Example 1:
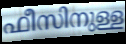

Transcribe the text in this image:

ഫീസിനുള്ള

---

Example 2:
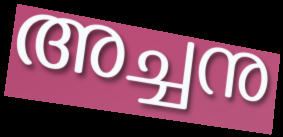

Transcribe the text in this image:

അച്ചനു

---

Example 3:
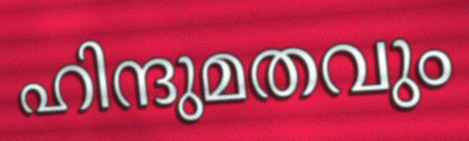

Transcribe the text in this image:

ഹിന്ദുമതവും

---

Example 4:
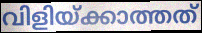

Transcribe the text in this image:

വിളിയ്ക്കാത്തത്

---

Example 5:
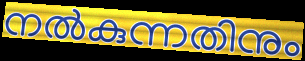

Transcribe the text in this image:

നൽകുന്നതിനും